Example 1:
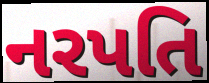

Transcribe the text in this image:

નરપતિ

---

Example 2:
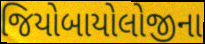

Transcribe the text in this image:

જિયોબાયોલોજીના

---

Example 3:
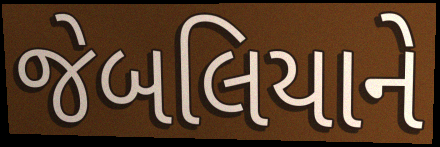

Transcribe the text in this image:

જેબલિયાને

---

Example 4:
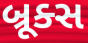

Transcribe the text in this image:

બ્રૂક્સ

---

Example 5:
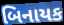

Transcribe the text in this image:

બિનાયક